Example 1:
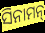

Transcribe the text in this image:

ସିନାମନ୍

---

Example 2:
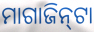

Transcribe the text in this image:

ମାଗାଜିନ୍‌ଟା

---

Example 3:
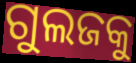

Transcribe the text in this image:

ଗୁଲଜକୁ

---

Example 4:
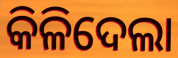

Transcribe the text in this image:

କିଳିଦେଲା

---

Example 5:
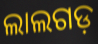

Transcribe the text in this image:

ଲାଲଗଡ଼